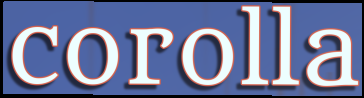
corolla